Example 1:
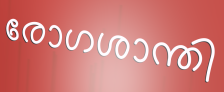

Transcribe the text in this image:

രോഗശാന്തി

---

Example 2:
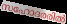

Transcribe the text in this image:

സഹോദരരിൽ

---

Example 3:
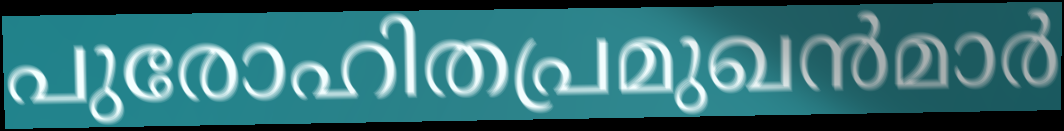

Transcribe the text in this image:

പുരോഹിതപ്രമുഖൻമാർ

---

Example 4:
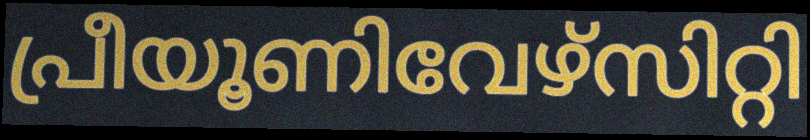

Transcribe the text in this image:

പ്രീയൂണിവേഴ്സിറ്റി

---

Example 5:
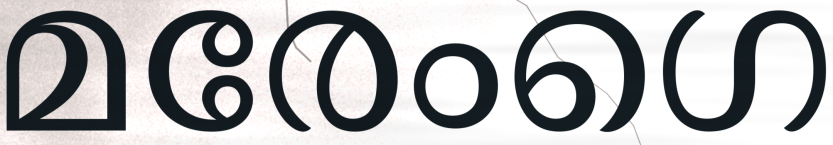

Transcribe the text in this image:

മരേംഗെ